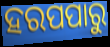
ହରପପାରୁ